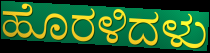
ಹೊರಳಿದಳು